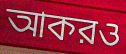
আকরও